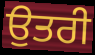
ਉਤਰੀ